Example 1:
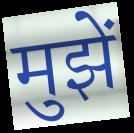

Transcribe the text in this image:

मुझें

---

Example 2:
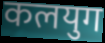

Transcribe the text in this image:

कलयुग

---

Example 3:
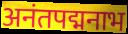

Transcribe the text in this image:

अनंतपद्मनाभ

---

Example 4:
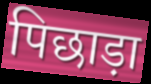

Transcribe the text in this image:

पिछाड़ा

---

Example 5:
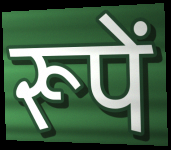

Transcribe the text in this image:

रूपें